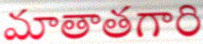
మాతాతగారి